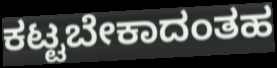
ಕಟ್ಟಬೇಕಾದಂತಹ